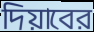
দিয়াবের